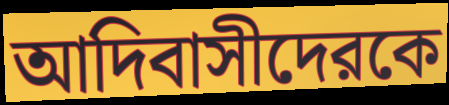
আদিবাসীদেরকে